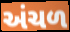
અંચળ